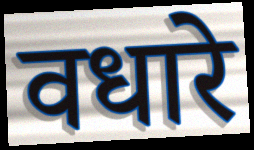
वधारे